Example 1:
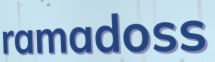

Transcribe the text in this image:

ramadoss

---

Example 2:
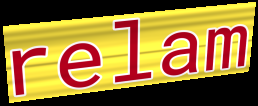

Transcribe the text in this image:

relam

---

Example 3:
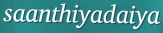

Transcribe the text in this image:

saanthiyadaiya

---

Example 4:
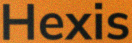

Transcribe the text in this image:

Hexis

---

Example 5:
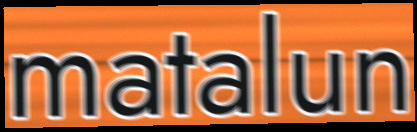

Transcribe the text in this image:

matalun